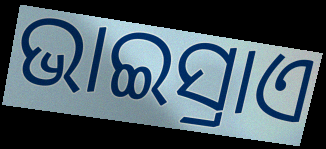
ଭାଇସ୍ରାଏ